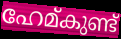
ഹേമ്കുണ്ട്